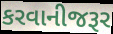
કરવાનીજરૂર